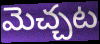
మెచ్చట